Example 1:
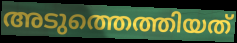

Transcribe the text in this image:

അടുത്തെത്തിയത്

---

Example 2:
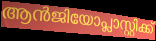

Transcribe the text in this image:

ആൻജിയോപ്ലാസ്റ്റിക്ക്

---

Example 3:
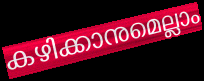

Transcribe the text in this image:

കഴിക്കാനുമെല്ലാം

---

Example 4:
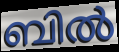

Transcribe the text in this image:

ബിൽ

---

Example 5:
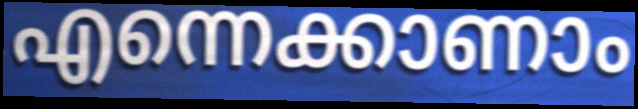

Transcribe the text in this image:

എന്നെക്കാണാം